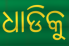
ଧାଡିକୁ